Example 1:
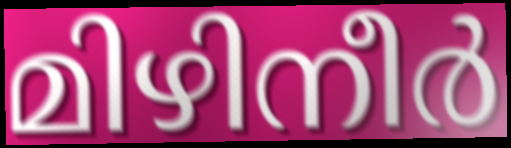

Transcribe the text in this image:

മിഴിനീർ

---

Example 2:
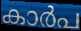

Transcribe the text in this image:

കാർപ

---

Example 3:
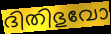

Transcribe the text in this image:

ദിതിഭുവോ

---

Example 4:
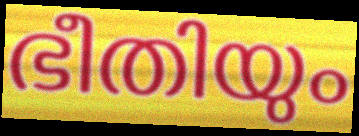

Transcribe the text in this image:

ഭീതിയും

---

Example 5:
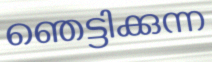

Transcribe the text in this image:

ഞെട്ടിക്കുന്ന